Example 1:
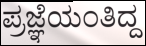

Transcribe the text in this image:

ಪ್ರಜ್ಞೆಯಂತಿದ್ದ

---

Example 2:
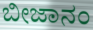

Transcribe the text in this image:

ಬೀಜಾನಂ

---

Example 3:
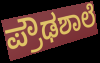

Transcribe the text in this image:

ಪ್ರೌಢಶಾಲೆ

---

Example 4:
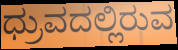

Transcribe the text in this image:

ಧ್ರುವದಲ್ಲಿರುವ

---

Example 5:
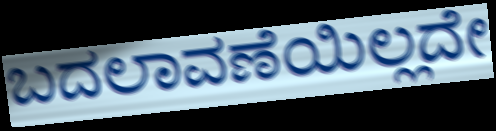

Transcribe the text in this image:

ಬದಲಾವಣೆಯಿಲ್ಲದೇ